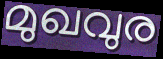
മുഖവുര